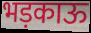
भड़काऊ